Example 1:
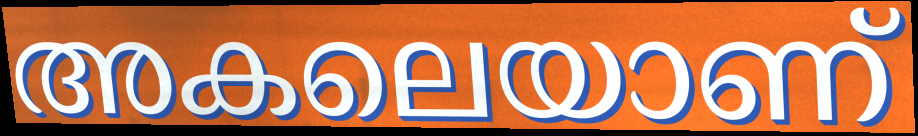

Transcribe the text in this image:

അകലെയാണ്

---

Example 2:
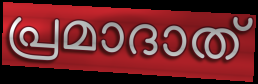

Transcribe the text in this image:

പ്രമാദാത്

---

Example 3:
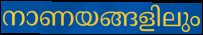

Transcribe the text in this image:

നാണയങ്ങളിലും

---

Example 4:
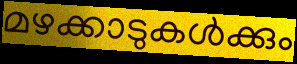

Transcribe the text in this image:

മഴക്കാടുകൾക്കും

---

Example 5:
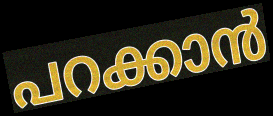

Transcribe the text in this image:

പറക്കാൻ